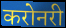
करोनरी